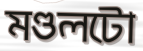
মণ্ডলটো